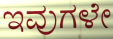
ಇವುಗಳೇ